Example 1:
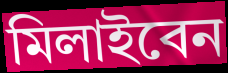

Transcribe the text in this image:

মিলাইবেন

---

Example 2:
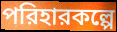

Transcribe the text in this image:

পরিহারকল্পে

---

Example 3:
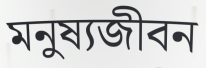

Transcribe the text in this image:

মনুষ্যজীবন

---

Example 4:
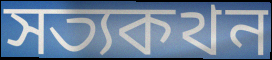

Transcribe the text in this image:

সত্যকথন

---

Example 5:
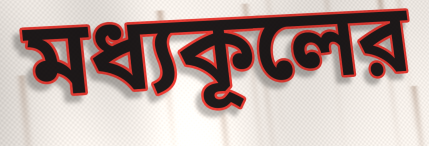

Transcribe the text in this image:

মধ্যকূলের